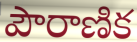
పౌరాణిక